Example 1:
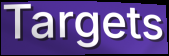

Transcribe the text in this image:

Targets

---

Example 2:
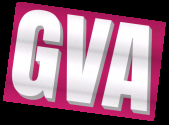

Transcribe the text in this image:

GVA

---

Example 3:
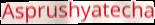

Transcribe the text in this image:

Asprushyatecha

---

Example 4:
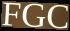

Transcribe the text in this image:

FGC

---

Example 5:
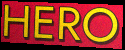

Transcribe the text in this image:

HERO